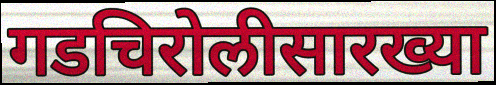
गडचिरोलीसारख्या